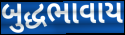
બુદ્ધભાવાય